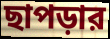
ছাপড়ার